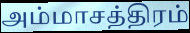
அம்மாசத்திரம்